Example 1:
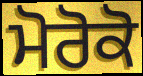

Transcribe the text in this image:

ਮੋਰੋਕੋ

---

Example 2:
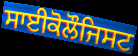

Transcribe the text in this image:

ਸਾਈਕੋਲੌਜਿਸਟ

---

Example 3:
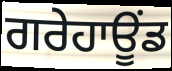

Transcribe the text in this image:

ਗਰੇਹਾਊਂਡ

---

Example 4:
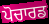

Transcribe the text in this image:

ਪੋਚਾਰਡ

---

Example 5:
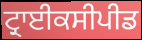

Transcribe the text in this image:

ਟ੍ਰਾਈਕਸੀਪੀਡ